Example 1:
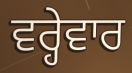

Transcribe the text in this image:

ਵਰ੍ਹੇਵਾਰ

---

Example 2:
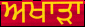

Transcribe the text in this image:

ਅਖਾੜਾ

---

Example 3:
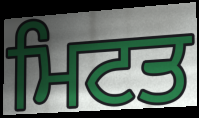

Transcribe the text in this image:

ਮਿਟਤ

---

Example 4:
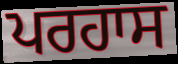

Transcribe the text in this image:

ਪਰਹਾਸ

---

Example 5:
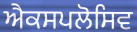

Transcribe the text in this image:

ਐਕਸਪਲੋਸਿਵ